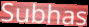
Subhas